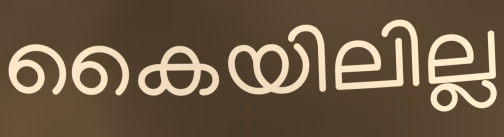
കൈയിലില്ല